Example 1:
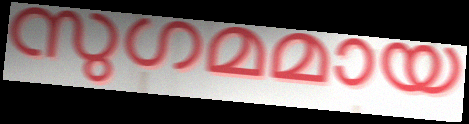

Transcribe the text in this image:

സുഗമമായ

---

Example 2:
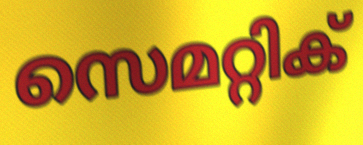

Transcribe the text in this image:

സെമറ്റിക്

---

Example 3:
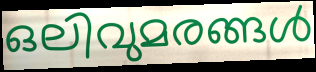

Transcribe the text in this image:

ഒലിവുമരങ്ങൾ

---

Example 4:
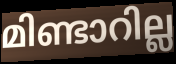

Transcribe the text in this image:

മിണ്ടാറില്ല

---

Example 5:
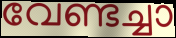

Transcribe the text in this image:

വേണ്ടച്ചാ